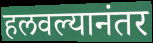
हलवल्यानंतर